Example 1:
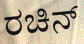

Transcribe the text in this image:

ರಚಿನ್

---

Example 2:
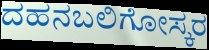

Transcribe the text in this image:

ದಹನಬಲಿಗೋಸ್ಕರ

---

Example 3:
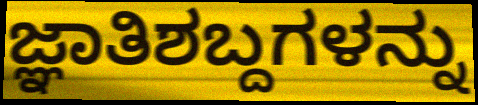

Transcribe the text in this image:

ಜ್ಞಾತಿಶಬ್ದಗಳನ್ನು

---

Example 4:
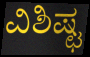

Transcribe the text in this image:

ವಿಶಿಷ್ಟ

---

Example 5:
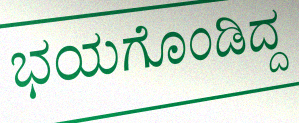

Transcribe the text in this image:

ಭಯಗೊಂಡಿದ್ದ